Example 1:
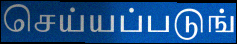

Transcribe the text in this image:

செய்யப்படுங்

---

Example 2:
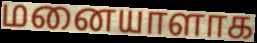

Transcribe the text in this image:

மனையாளாக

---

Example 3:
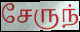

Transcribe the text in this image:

சேருந்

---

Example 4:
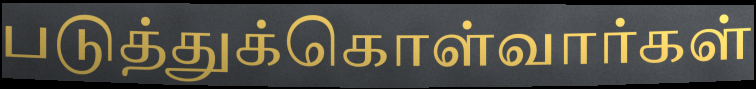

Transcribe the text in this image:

படுத்துக்கொள்வார்கள்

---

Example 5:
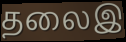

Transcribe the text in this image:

தலைஇ